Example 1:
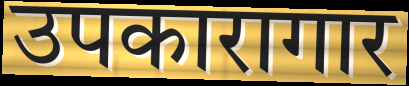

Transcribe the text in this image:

उपकारागार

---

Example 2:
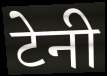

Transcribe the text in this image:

टेनी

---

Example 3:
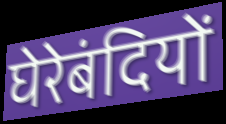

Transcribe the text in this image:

घेरेबंदियों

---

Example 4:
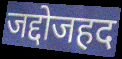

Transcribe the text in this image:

जद्दोजहद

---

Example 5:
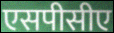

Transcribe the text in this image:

एसपीसीए